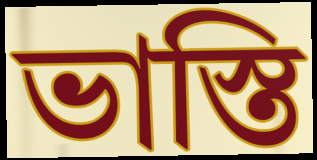
ভাস্তি